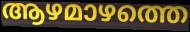
ആഴമാഴത്തെ